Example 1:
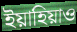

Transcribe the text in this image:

ইয়াহিয়াও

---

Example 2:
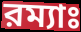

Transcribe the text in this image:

রম্যাঃ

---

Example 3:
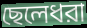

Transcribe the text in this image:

ছেলেধরা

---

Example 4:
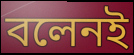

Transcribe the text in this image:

বলেনই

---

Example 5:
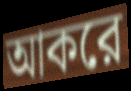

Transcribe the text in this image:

আকরে